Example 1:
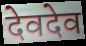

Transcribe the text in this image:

देवदेव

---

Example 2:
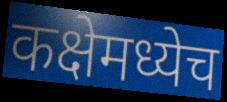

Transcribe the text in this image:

कक्षेमध्येच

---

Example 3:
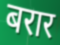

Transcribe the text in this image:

बरार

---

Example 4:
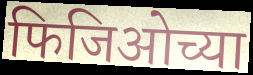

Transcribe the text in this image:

फिजिओच्या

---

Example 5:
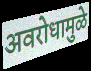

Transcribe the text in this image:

अवरोधामुळे